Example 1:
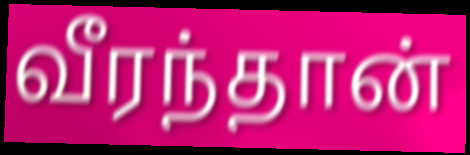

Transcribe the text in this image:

வீரந்தான்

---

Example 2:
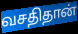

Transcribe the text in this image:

வசதிதான்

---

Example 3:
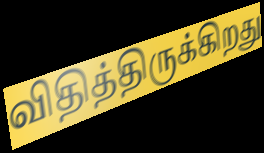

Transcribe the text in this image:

விதித்திருக்கிறது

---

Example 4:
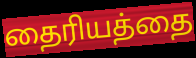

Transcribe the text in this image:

தைரியத்தை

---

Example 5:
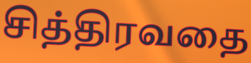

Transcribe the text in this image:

சித்திரவதை